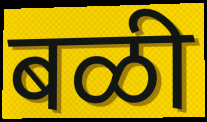
बळी